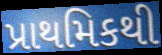
પ્રાથમિકથી